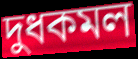
দুধকমল